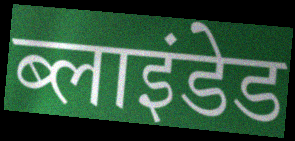
ब्लाइंडेड